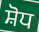
ਸ਼ੋਧ